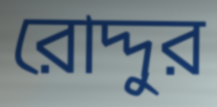
রোদ্দুর